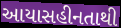
આયાસહીનતાથી